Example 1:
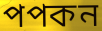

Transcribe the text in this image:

পপকন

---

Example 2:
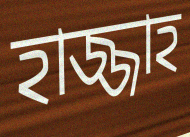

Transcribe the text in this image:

হাজ্জাহ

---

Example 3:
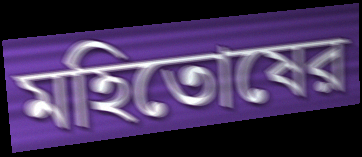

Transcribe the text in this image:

মহিতোষের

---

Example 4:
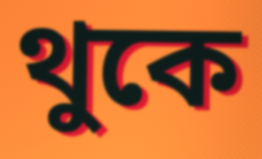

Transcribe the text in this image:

থুকে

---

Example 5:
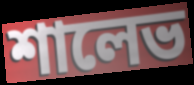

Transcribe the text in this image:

শালেভ